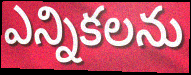
ఎన్నికలను